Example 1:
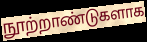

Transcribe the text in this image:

நூற்றாண்டுகளாக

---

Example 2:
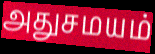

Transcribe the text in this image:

அதுசமயம்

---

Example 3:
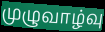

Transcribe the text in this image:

முழுவாழ்வு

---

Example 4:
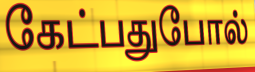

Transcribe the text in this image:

கேட்பதுபோல்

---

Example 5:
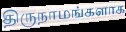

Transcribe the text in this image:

திருநாமங்களாக